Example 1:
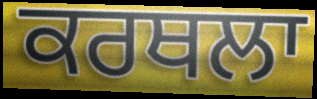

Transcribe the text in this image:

ਕਰਥਲਾ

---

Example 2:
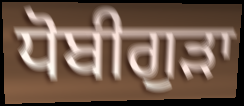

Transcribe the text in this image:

ਧੋਬੀਗੁੜਾ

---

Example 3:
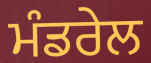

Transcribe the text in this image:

ਮੰਡਰੇਲ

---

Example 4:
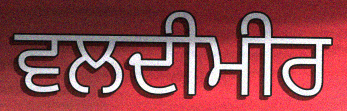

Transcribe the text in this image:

ਵਲਦੀਮੀਰ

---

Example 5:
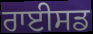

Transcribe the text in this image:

ਰਾਈਸਡ